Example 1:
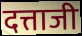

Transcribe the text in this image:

दत्ताजी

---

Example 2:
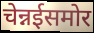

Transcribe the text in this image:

चेन्नईसमोर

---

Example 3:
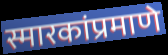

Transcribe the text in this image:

स्मारकांप्रमाणे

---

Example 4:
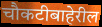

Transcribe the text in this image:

चौकटीबाहेरील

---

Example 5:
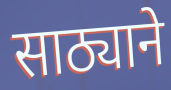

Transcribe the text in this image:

साठ्याने